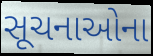
સૂચનાઓના